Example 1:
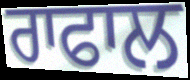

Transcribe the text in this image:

ਰਾਫਾਲ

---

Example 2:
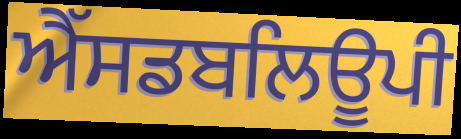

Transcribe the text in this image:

ਐੱਸਡਬਲਿਊਪੀ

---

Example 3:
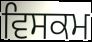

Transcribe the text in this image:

ਵਿਸਕਮ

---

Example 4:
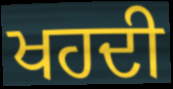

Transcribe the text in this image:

ਖਹਦੀ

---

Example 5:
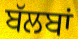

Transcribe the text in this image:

ਬੱਲਬਾਂ